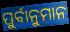
ପୁର୍ବାନୁମାନ